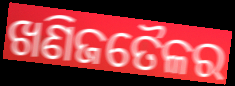
ଖଣିଜତୈଳର